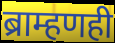
ब्राम्हणही